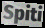
Spiti